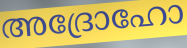
അദ്രോഹോ